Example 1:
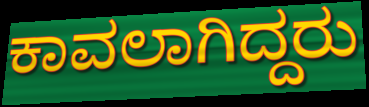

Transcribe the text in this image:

ಕಾವಲಾಗಿದ್ದರು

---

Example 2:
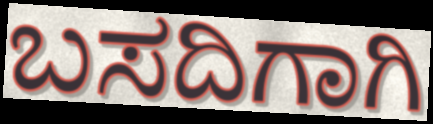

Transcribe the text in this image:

ಬಸದಿಗಾಗಿ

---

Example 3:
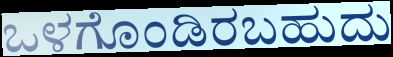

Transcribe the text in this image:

ಒಳಗೊಂಡಿರಬಹುದು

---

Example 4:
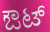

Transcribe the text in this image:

ಔಟ್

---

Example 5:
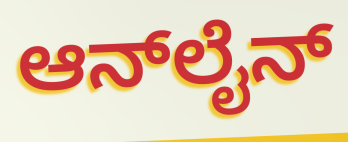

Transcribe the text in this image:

ಆನ್‍ಲೈನ್